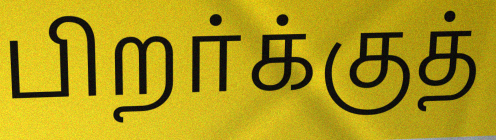
பிறர்க்குத்